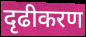
दृढीकरण